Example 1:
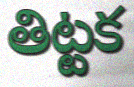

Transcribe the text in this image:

తిట్టక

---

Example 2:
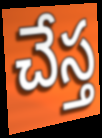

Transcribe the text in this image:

చేస్త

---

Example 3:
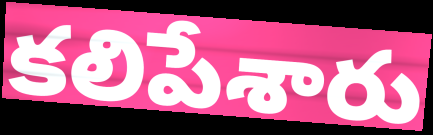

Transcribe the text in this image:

కలిపేశారు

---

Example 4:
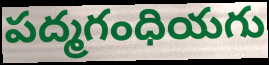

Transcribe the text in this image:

పద్మగంధియగు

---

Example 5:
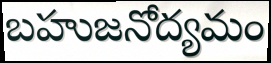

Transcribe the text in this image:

బహుజనోద్యమం